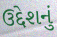
ઉદ્દેશનું